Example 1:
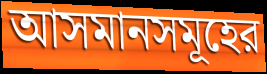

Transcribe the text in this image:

আসমানসমূহের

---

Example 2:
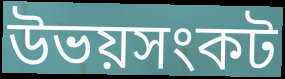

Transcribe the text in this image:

উভয়সংকট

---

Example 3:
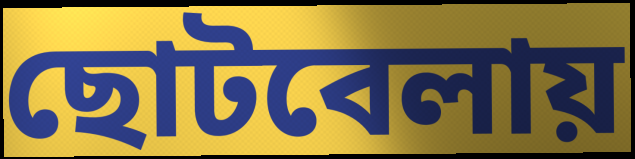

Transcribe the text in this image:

ছোটবেলায়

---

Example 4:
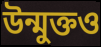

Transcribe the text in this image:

উন্মুক্তও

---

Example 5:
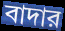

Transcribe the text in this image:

বাদার